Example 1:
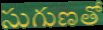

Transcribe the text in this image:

సుగుణతో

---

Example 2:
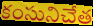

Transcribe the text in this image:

కంసునిచేత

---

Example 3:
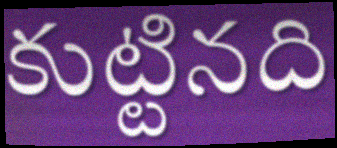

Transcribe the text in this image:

కుట్టినది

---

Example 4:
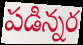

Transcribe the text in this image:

పడిన్నర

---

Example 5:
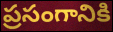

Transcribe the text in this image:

ప్రసంగానికి